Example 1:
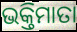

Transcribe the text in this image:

ଭକ୍ତିମାତା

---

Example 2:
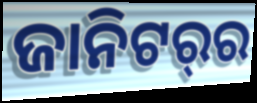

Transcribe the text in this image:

ଜାନିଟର୍‌ର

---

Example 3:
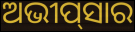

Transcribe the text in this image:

ଅଭୀପ୍‌ସାର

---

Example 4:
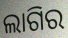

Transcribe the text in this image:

ଲାଗିର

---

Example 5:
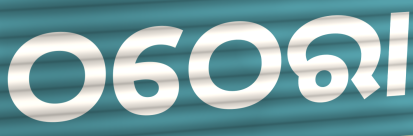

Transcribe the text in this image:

ଠଠେରା